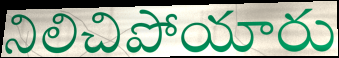
నిలిచిపోయారు